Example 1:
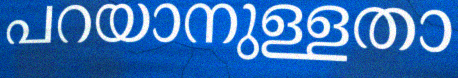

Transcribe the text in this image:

പറയാനുള്ളതാ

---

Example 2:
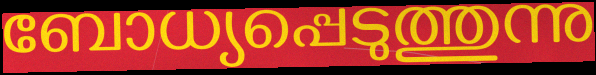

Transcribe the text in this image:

ബോധ്യപ്പെടുത്തുന്നു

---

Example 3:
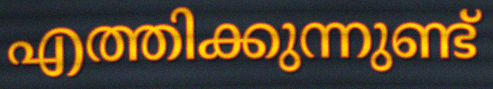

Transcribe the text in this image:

എത്തിക്കുന്നുണ്ട്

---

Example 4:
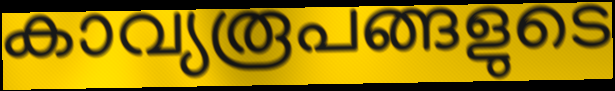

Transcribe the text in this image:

കാവ്യരൂപങ്ങളുടെ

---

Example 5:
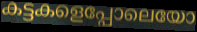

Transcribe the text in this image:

കട്ടകളെപ്പോലെയോ